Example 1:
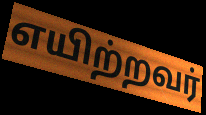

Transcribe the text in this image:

எயிற்றவர்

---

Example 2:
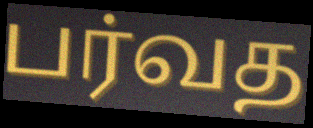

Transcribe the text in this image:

பர்வத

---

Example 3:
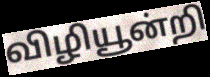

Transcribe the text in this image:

விழியூன்றி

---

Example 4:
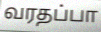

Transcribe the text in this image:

வரதப்பா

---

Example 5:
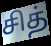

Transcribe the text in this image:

சித்